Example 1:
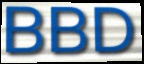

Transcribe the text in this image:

BBD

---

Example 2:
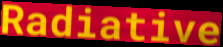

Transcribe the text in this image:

Radiative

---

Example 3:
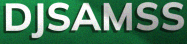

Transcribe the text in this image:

DJSAMSS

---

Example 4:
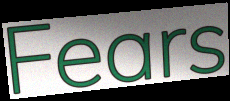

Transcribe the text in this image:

Fears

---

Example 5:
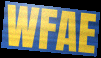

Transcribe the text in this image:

WFAE